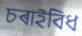
চৰাইবিধ